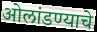
ओलांडण्याचे